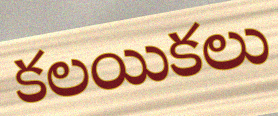
కలయికలు